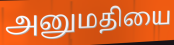
அனுமதியை